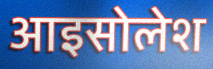
आइसोलेश